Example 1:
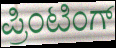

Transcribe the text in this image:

ಪ್ರಿಂಟಿಂಗ್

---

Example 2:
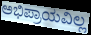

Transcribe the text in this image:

ಅಭಿಪ್ರಾಯವಿಲ್ಲ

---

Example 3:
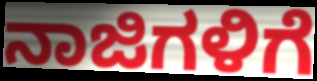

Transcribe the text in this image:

ನಾಜಿಗಳಿಗೆ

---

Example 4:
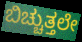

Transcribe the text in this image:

ಬಿಚ್ಚುತ್ತಲೇ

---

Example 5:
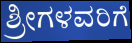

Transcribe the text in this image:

ಶ್ರೀಗಳವರಿಗೆ